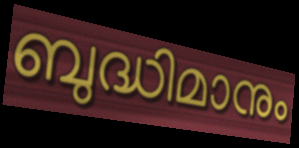
ബുദ്ധിമാനും